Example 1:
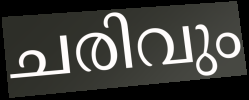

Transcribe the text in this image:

ചരിവും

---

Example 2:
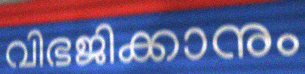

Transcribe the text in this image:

വിഭജിക്കാനും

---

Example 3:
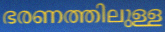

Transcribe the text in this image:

ഭരണത്തിലുള്ള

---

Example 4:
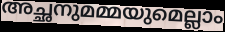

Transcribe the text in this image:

അച്ഛനുമമ്മയുമെല്ലാം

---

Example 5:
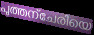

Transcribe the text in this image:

പുത്തന്ചേരിയെ